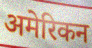
अमेरिकन